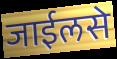
जाईलसे